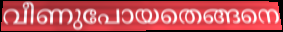
വീണുപോയതെങ്ങനെ